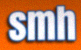
smh